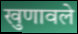
खुणावले